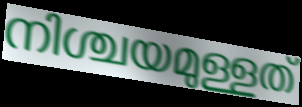
നിശ്ചയമുള്ളത്